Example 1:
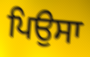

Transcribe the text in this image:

ਪਿਉਸਾ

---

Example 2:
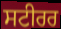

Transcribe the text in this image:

ਸਟੀਰਰ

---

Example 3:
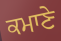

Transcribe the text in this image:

ਕਮਾਣੇ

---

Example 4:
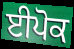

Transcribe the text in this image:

ਈਪੋਕ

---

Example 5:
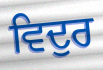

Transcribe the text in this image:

ਵਿਦੁਰ